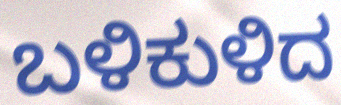
ಬಳಿಕುಳಿದ